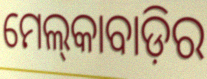
ମେଲ୍‍କାବାଡ଼ିର